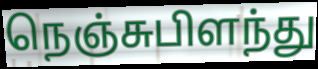
நெஞ்சுபிளந்து